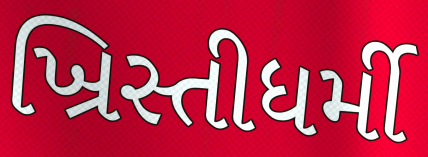
ખ્રિસ્તીધર્મી